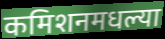
कमिशनमधल्या